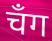
चँग